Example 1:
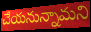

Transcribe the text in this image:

చేయనున్నామని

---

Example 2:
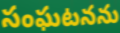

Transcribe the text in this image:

సంఘటనను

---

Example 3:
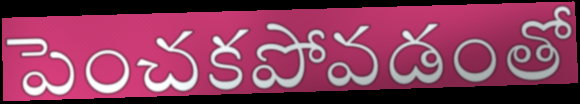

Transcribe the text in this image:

పెంచకపోవడంతో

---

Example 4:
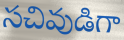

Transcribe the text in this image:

సచివుడిగా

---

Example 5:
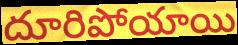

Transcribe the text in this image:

దూరిపోయాయి